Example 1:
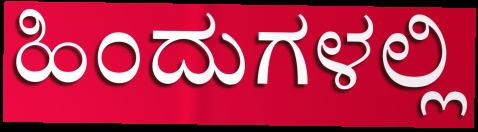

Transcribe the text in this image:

ಹಿಂದುಗಳಲ್ಲಿ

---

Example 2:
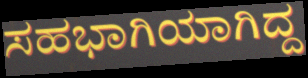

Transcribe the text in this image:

ಸಹಭಾಗಿಯಾಗಿದ್ದ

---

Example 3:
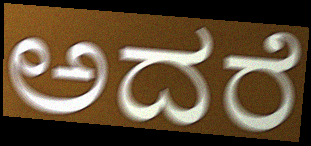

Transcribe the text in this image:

ಅದರೆ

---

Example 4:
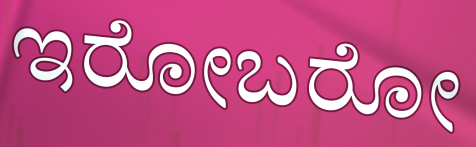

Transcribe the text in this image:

ಇರೋಬರೋ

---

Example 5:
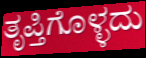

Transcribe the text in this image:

ತೃಪ್ತಿಗೊಳ್ಳದು